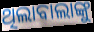
ଥିଲାବାଲାଙ୍କୁ